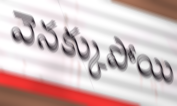
వెనక్కుపోయి